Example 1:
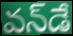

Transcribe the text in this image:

వన్‌డే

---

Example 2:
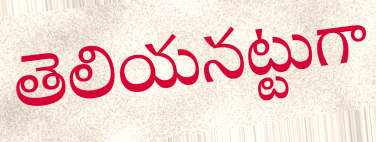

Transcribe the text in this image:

తెలియనట్టుగా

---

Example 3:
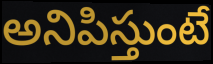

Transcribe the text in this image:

అనిపిస్తుంటే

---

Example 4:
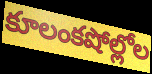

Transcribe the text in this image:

కూలంకషోల్లోల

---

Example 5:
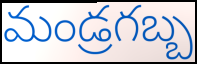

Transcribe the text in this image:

మండ్రగబ్బ